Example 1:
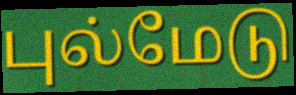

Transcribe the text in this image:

புல்மேடு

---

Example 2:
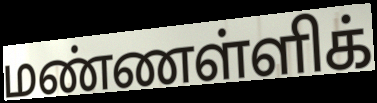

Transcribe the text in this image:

மண்ணள்ளிக்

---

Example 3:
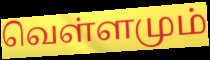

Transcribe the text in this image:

வெள்ளமும்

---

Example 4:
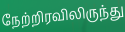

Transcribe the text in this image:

நேற்றிரவிலிருந்து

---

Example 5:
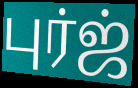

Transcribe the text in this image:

புர்ஜ்